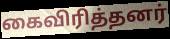
கைவிரித்தனர்